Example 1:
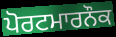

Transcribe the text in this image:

ਪੋਰਟਮਾਰਨੌਕ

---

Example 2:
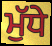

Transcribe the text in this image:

ਮੁੱਧੇ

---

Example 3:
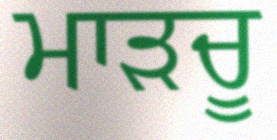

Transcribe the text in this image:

ਮਾੜਚੂ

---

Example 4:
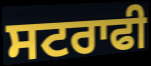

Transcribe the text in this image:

ਸਟਰਾਫੀ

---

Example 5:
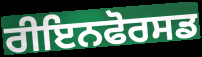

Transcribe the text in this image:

ਰੀਇਨਫੋਰਸਡ